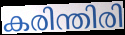
കരിന്തിരി